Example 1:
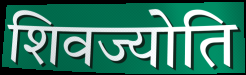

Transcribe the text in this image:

शिवज्योति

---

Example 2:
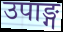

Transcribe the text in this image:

उपाङ्ग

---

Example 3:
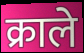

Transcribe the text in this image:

क्राले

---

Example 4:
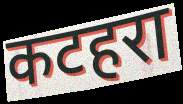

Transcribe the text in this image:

कटहरा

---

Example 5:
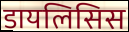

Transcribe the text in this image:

डायलिसिस